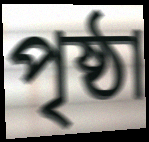
পৃষ্ঠা